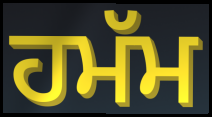
ਹਮੱਮ